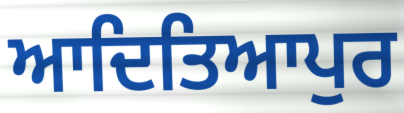
ਆਦਿਤਿਆਪੁਰ